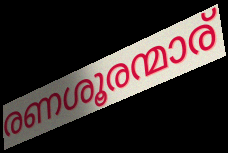
രണശൂരന്മാര്